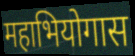
महाभियोगास